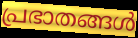
പ്രഭാതങ്ങൾ